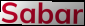
Sabar